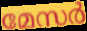
മേസർ